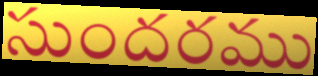
సుందరము